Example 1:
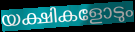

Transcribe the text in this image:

യക്ഷികളോടും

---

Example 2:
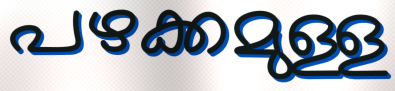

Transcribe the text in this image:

പഴക്കമുള്ള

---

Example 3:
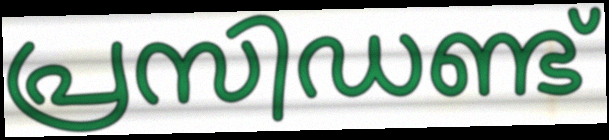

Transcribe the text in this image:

പ്രസിഡണ്ട്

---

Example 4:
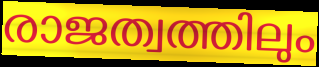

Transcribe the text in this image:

രാജത്വത്തിലും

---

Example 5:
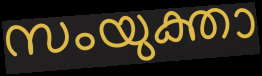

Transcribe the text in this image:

സംയുക്താ